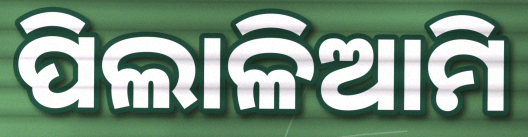
ପିଲାଳିଆମି